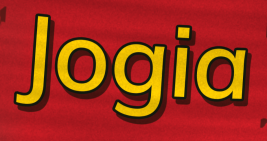
Jogia